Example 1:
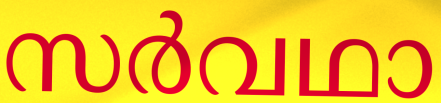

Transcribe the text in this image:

സർവഥാ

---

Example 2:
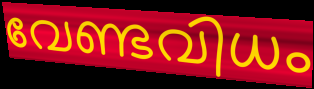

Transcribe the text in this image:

വേണ്ടവിധം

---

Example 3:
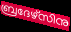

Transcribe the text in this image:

ബ്രദേഴ്സിനു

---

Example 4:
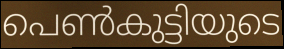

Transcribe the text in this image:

പെൺകുട്ടിയുടെ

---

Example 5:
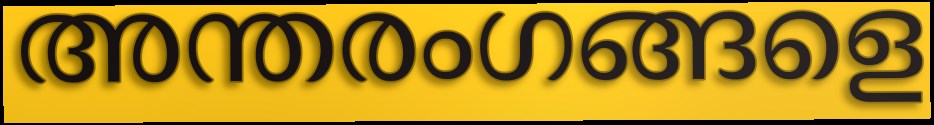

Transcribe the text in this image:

അന്തരംഗങ്ങളെ